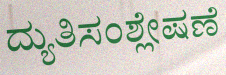
ದ್ಯುತಿಸಂಶ್ಲೇಷಣೆ